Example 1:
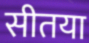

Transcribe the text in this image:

सीतया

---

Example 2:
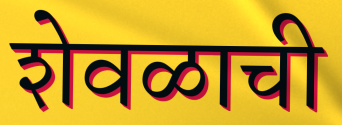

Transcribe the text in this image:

शेवळाची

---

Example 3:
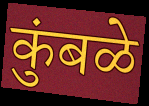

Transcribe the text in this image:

कुंबळे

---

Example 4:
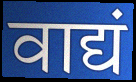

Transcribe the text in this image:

वाद्यं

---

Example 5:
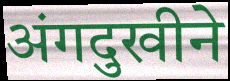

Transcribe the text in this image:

अंगदुखीने